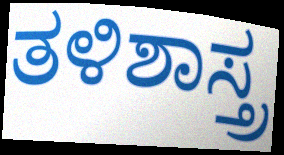
ತಳಿಶಾಸ್ತ್ರ